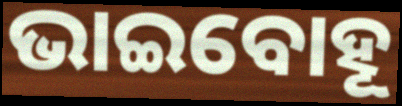
ଭାଇବୋହୂ